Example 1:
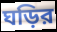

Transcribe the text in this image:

ঘড়ির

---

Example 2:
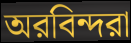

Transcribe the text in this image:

অরবিন্দরা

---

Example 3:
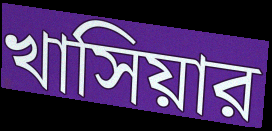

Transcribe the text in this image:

খাসিয়ার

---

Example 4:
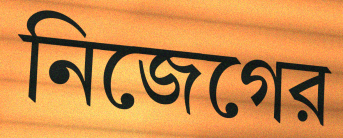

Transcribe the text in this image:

নিজেগের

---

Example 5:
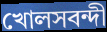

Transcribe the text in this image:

খোলসবন্দী